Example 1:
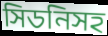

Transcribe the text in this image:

সিডনিসহ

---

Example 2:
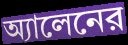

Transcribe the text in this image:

অ্যালেনের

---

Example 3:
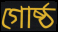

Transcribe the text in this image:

গোষ্ঠ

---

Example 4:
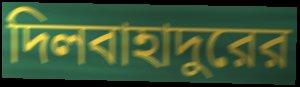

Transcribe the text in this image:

দিলবাহাদুরের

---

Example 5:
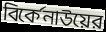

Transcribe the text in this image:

বির্কেনাউয়ের